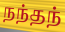
நந்தந்